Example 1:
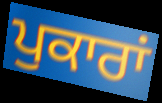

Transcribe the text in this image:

ਪੁਕਾਰਾਂ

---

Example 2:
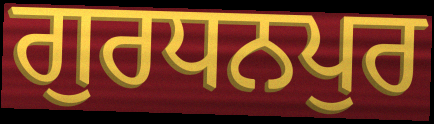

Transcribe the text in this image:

ਗੁਰਧਨਪੁਰ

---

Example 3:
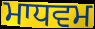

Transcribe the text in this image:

ਮਾਧਵਮ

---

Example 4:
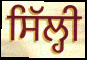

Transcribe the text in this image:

ਸਿੱਲ੍ਹੀ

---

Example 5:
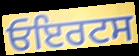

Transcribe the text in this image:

ਓਇਰਟਸ